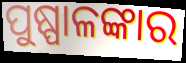
ପୁଷ୍ପାଳଙ୍କାର